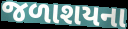
જળાશયના